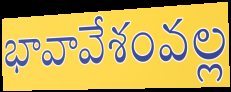
భావావేశంవల్ల